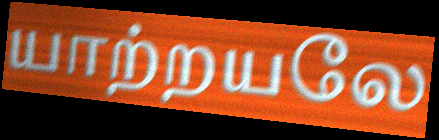
யாற்றயலே